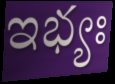
ఇభ్యః